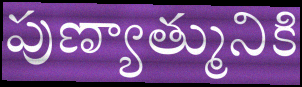
పుణ్యాత్మునికి